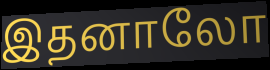
இதனாலோ